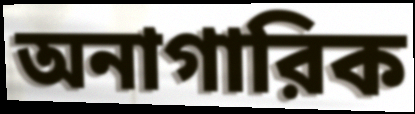
অনাগারিক